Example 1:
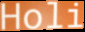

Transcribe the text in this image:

Holi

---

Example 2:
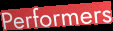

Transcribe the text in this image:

Performers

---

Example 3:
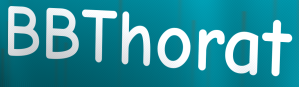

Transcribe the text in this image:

BBThorat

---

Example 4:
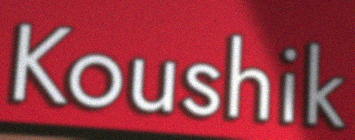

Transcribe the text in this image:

Koushik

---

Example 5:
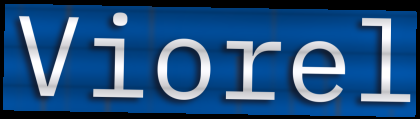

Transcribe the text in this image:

Viorel